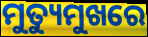
ମୁତ୍ୟୁମୁଖରେ